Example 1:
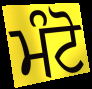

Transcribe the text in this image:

ਮੰਟੋ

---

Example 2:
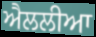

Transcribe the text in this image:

ਐਲਲੀਆ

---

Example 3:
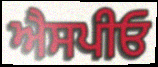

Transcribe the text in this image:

ਐਸਪੀਓ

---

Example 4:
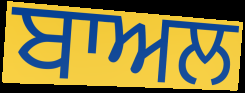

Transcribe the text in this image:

ਬਾਅਲ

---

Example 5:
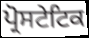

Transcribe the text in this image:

ਪ੍ਰੋਸਟੇਟਿਕ